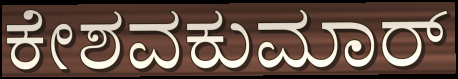
ಕೇಶವಕುಮಾರ್